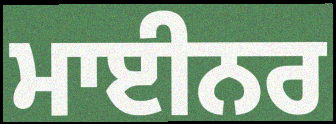
ਮਾਈਨਰ